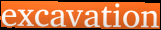
excavation